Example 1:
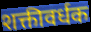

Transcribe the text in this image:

शक्तीवर्धक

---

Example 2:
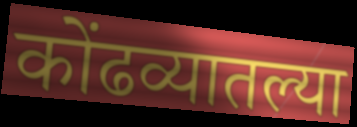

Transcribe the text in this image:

कोंढव्यातल्या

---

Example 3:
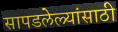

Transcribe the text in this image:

सापडलेल्यांसाठी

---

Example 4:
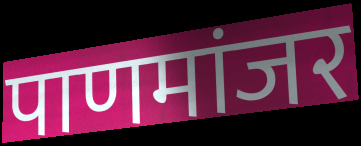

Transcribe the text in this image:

पाणमांजर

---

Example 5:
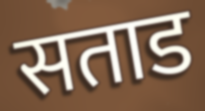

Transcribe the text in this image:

सताड